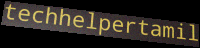
techhelpertamil